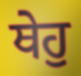
ਥੇਹੁ